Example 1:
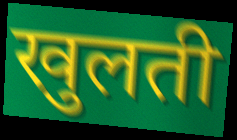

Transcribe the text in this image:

खुलती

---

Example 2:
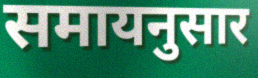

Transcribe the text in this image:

समायनुसार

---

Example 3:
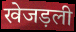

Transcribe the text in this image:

खेजड़ली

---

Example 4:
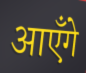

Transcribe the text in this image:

आएँगे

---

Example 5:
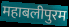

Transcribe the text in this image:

महाबलीपुरम